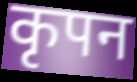
कृपन